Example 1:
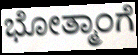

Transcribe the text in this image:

ಭೋತ್ಮಾಂಗೆ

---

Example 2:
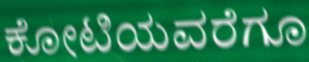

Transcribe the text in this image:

ಕೋಟಿಯವರೆಗೂ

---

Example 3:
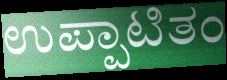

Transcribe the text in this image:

ಉಪ್ಪಾಟಿತಂ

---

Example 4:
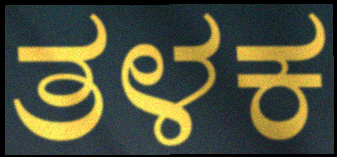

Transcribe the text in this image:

ತಳಕ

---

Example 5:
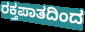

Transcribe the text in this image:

ರಕ್ತಪಾತದಿಂದ